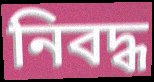
নিবদ্ধ